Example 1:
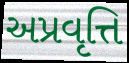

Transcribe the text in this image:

અપ્રવૃત્તિ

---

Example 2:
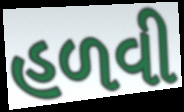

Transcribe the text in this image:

હળવી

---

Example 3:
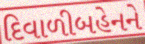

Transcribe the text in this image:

દિવાળીબહેનને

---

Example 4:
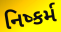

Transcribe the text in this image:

નિષ્કર્મ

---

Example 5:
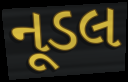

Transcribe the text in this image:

નૂડલ